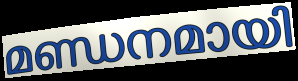
മണ്ഡനമായി